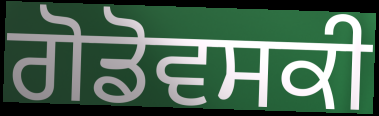
ਗੋਡੋਵਸਕੀ